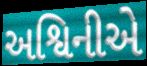
અશ્વિનીએ